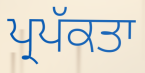
ਪ੍ਰਪੱਕਤਾ